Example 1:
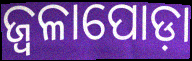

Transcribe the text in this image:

ଜ୍ୱଳାପୋଡ଼ା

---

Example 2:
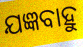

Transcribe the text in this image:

ଯଜ୍ଞବାହୁ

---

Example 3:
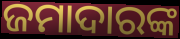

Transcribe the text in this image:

ଜମାଦାରଙ୍କ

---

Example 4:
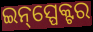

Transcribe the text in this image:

ଇନ୍‌ସ୍ପେକ୍ଟର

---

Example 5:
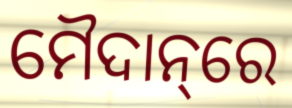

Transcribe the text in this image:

ମୈଦାନ୍‌ରେ